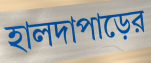
হালদাপাড়ের